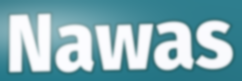
Nawas